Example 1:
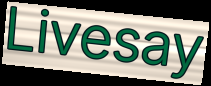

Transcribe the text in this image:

Livesay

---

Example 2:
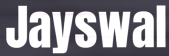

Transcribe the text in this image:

Jayswal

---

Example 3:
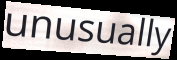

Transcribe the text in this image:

unusually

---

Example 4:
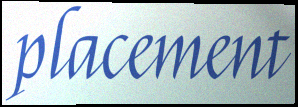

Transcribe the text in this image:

placement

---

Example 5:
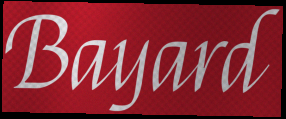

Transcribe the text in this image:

Bayard